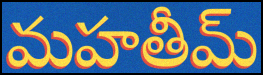
మహతీమ్